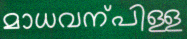
മാധവന്പിള്ള